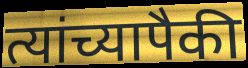
त्यांच्यापैकी